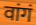
वांगं